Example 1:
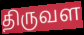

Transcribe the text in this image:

திருவள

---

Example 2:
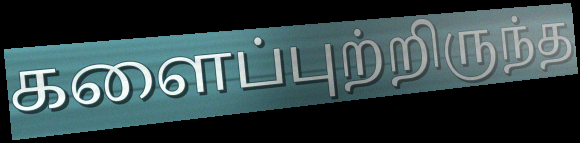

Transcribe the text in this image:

களைப்புற்றிருந்த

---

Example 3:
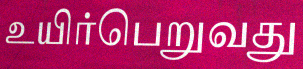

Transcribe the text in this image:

உயிர்பெறுவது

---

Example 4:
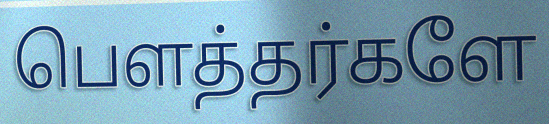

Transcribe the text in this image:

பௌத்தர்களே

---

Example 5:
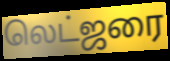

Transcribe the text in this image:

லெட்ஜரை